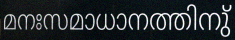
മനഃസമാധാനത്തിനു്